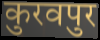
कुरवपुर